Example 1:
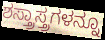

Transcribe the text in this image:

ಶಸ್ತ್ರಾಸ್ತ್ರಗಳನ್ನೂ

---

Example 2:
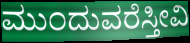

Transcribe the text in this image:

ಮುಂದುವರೆಸ್ತೀವಿ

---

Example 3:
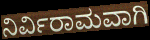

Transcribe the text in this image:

ನಿರ್ವಿರಾಮವಾಗಿ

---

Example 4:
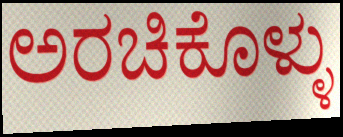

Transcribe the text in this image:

ಅರಚಿಕೊಳ್ಳು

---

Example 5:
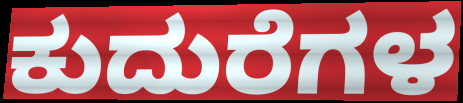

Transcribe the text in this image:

ಕುದುರೆಗಳ